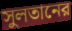
সুলতানের